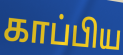
காப்பிய